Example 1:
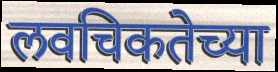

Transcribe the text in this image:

लवचिकतेच्या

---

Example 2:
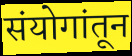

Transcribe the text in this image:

संयोगांतून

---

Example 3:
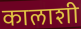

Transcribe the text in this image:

कालाशी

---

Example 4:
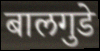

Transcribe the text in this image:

बालगुडे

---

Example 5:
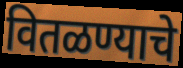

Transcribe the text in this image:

वितळण्याचे